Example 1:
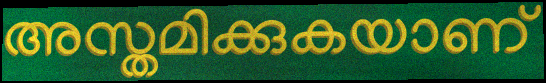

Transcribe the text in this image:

അസ്തമിക്കുകയാണ്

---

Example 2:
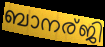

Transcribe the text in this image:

ബാനര്ജി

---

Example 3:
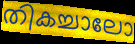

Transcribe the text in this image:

തികച്ചാലോ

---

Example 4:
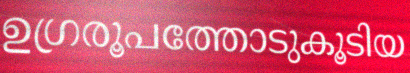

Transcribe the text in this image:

ഉഗ്രരൂപത്തോടുകൂടിയ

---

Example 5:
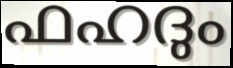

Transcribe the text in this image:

ഫഹദും